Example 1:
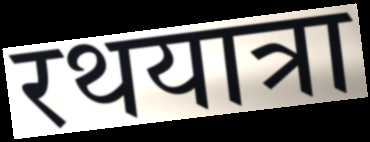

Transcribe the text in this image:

रथयात्रा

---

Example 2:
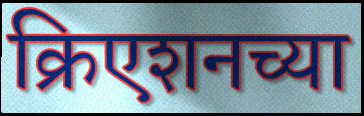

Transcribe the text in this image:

क्रिएशनच्या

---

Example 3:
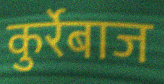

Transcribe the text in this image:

कुर्रेबाज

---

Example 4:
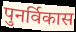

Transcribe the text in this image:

पुनर्विकास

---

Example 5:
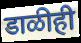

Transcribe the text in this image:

डाळीही